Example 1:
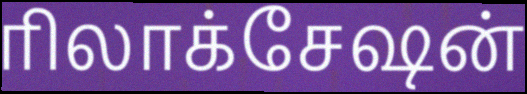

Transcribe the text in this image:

ரிலாக்சேஷன்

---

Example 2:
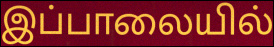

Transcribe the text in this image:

இப்பாலையில்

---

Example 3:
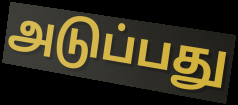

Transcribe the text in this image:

அடுப்பது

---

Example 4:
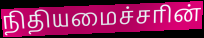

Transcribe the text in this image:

நிதியமைச்சரின்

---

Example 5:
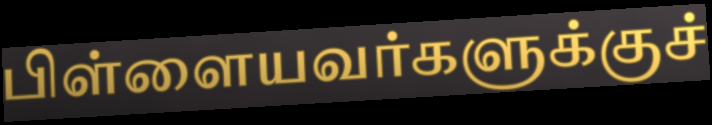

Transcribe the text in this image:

பிள்ளையவர்களுக்குச்